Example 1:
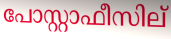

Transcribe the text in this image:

പോസ്റ്റാഫീസില്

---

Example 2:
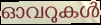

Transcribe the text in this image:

ഓവറുകൾ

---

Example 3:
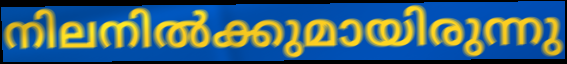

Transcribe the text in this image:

നിലനിൽക്കുമായിരുന്നു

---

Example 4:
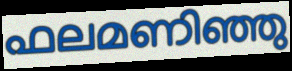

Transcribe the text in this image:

ഫലമണിഞ്ഞു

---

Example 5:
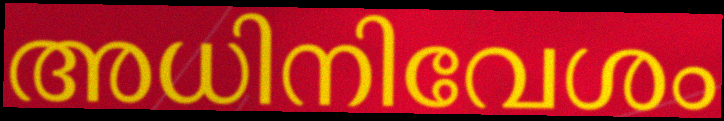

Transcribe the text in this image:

അധിനിവേശം